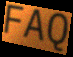
FAQ